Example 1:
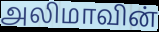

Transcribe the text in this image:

அலிமாவின்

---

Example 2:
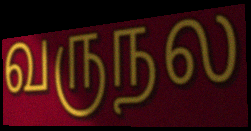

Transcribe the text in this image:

வருநல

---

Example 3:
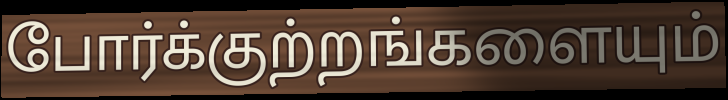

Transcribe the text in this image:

போர்க்குற்றங்களையும்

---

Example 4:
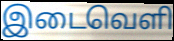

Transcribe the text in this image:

இடைவெளி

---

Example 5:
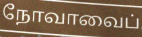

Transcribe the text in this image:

நோவாவைப்